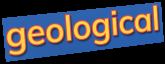
geological